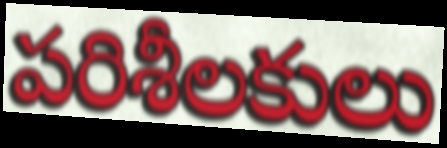
పరిశీలకులు